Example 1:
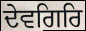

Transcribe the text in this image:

ਦੇਵਗਿਰਿ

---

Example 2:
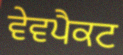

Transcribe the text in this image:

ਵੇਵਪੈਕਟ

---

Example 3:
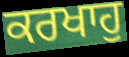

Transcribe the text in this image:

ਕਰਖਾਹੁ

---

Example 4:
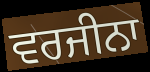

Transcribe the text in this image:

ਵਰਜੀਨਾ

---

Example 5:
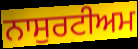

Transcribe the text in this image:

ਨਾਸੁਰਟੀਅਮ